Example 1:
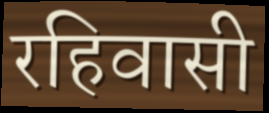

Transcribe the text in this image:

रहिवासी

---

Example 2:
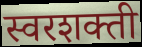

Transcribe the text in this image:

स्वरशक्ती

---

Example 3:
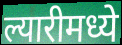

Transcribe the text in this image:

ल्यारीमध्ये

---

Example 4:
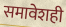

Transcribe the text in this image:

समावेशही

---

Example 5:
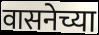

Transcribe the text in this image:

वासनेच्या